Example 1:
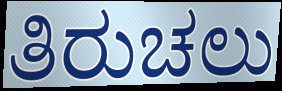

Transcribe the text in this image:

ತಿರುಚಲು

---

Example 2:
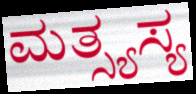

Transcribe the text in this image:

ಮತ್ಸ್ಯಸ್ಯ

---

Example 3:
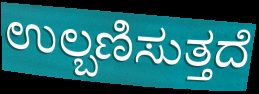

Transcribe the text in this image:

ಉಲ್ಬಣಿಸುತ್ತದೆ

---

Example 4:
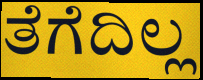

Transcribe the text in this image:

ತೆಗೆದಿಲ್ಲ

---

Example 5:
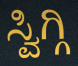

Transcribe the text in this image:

ಸ್ವಿಗ್ಗಿ